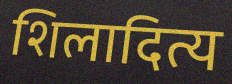
शिलादित्य